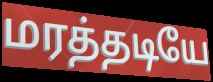
மரத்தடியே